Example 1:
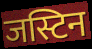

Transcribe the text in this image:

जस्टिन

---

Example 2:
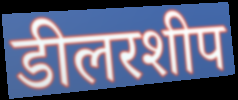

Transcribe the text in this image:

डीलरशीप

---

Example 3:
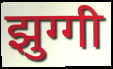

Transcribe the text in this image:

झुग्गी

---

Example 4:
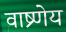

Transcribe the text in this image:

वाष्र्णेय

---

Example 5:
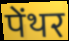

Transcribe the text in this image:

पेंथर